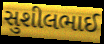
સુશીલભાઈ